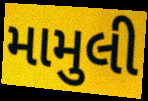
મામુલી